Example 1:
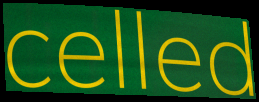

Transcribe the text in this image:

celled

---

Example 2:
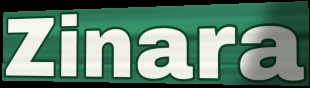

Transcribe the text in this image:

Zinara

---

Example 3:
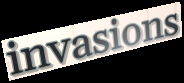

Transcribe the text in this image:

invasions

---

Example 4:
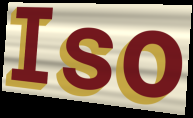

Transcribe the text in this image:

Iso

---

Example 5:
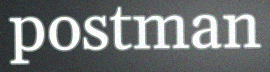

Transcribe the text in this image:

postman